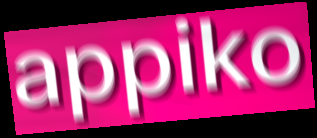
appiko